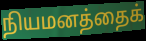
நியமனத்தைக்